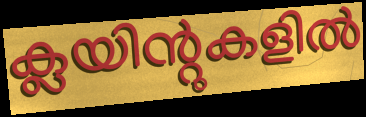
ക്ലയിന്റുകളിൽ